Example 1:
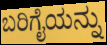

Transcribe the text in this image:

ಬರಿಗೈಯನ್ನು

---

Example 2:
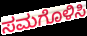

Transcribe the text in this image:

ಸಮಗೊಳಿಸಿ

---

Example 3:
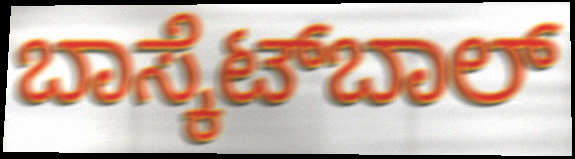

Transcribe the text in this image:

ಬಾಸ್ಕೆಟ್‍ಬಾಲ್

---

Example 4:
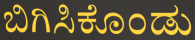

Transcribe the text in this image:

ಬಿಗಿಸಿಕೊಂಡು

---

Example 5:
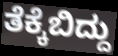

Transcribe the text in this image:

ತೆಕ್ಕೆಬಿದ್ದು